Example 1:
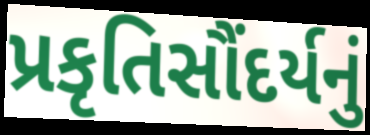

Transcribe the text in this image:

પ્રકૃતિસૌંદર્યનું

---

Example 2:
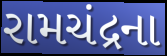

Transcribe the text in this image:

રામચંદ્રના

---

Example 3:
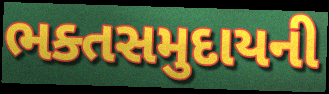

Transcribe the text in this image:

ભક્તસમુદાયની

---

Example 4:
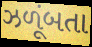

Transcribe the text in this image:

ઝળૂંબતા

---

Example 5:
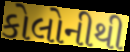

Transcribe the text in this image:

કોલોનીથી